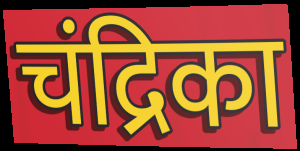
चंद्रिका